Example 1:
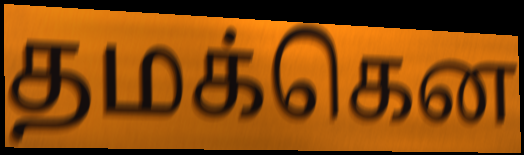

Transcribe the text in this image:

தமக்கென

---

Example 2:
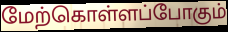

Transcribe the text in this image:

மேற்கொள்ளப்போகும்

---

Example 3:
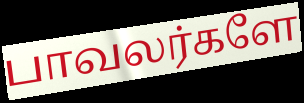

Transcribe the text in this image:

பாவலர்களே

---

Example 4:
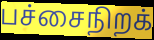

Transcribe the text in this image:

பச்சைநிறக்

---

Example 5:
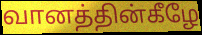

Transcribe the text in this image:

வானத்தின்கீழே